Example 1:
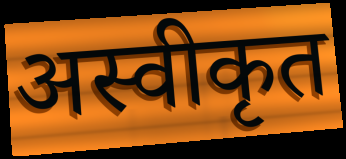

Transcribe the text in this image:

अस्वीकृत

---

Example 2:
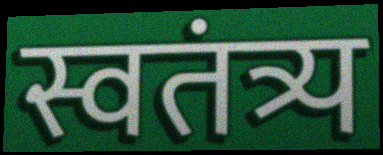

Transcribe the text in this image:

स्वतंत्र्य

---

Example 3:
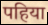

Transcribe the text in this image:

पहिया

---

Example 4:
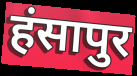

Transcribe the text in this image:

हंसापुर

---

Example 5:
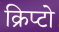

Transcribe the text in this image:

क्रिप्टो